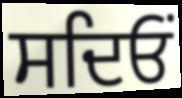
ਸਦਿਓਂ